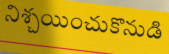
నిశ్చయించుకొనుడి